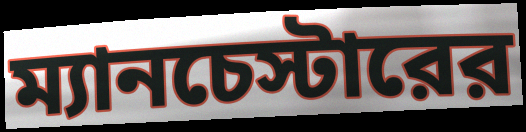
ম্যানচেস্টারের